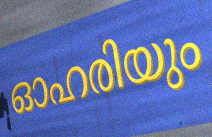
ഓഹരിയും